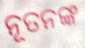
ନୂତନଙ୍କ